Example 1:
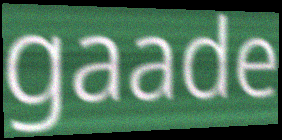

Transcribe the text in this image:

gaade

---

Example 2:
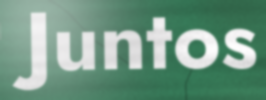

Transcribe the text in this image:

Juntos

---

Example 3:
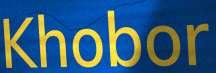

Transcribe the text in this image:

Khobor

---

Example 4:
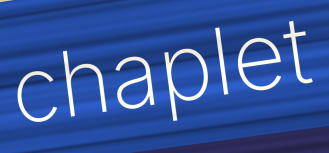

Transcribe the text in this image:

chaplet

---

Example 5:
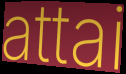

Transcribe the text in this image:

attai